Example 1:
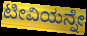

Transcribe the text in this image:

ಟೀವಿಯನ್ನೇ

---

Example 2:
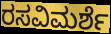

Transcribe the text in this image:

ರಸವಿಮರ್ಶೆ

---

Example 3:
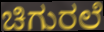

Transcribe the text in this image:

ಚಿಗುರಲೆ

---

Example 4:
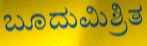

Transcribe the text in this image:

ಬೂದುಮಿಶ್ರಿತ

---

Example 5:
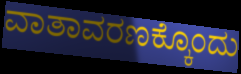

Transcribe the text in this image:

ವಾತಾವರಣಕ್ಕೊಂದು